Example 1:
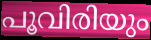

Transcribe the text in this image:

പൂവിരിയും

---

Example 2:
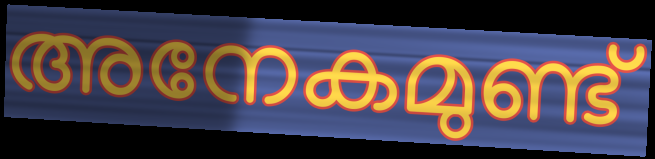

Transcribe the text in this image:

അനേകമുണ്ട്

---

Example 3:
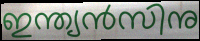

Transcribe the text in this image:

ഇന്ത്യൻസിനു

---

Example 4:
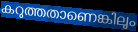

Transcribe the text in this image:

കറുത്തതാണെങ്കിലും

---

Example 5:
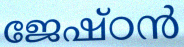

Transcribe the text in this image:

ജേഷ്ഠൻ